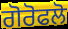
ਗੋਰੋਫਲੋ